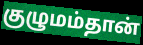
குழுமம்தான்